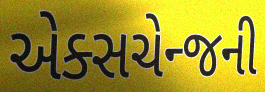
એક્સચેન્જની